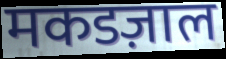
मकडज़ाल